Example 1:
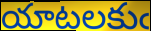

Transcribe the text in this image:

యాటలకుఁ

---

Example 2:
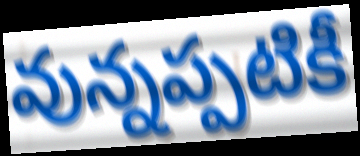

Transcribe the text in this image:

వున్నప్పటికీ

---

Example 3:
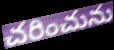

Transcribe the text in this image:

చరించును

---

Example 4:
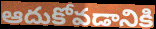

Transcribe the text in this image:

ఆదుకోవడానికి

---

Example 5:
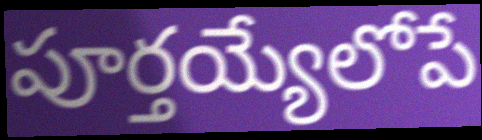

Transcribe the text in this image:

పూర్తయ్యేలోపే